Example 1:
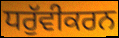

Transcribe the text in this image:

ਧਰੁੱਵੀਕਰਨ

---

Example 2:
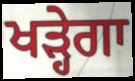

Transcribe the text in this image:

ਖੜ੍ਹੇਗਾ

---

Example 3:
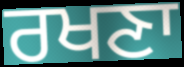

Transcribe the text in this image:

ਰਖਣਾ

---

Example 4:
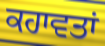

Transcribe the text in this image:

ਕਹਾਵਤਾਂ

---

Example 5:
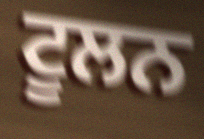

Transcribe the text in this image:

ਟੂਲਨ